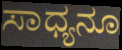
ಸಾಧ್ಯನೂ